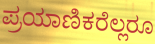
ಪ್ರಯಾಣಿಕರೆಲ್ಲರೂ